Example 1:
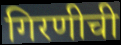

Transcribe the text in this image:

गिरणीची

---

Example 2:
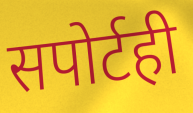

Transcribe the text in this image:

सपोर्टही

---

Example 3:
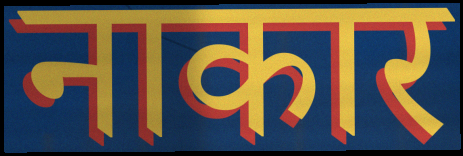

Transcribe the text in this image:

नाकार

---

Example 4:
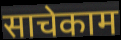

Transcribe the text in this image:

साचेकाम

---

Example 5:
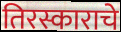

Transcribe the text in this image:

तिरस्काराचे